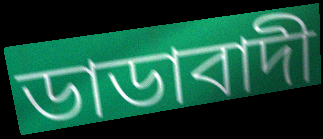
ডাডাবাদী